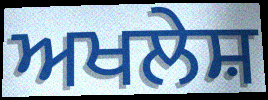
ਅਖਲੇਸ਼